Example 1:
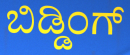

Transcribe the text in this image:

ಬಿಡ್ಡಿಂಗ್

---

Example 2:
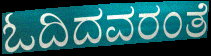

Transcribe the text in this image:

ಓದಿದವರಂತೆ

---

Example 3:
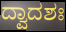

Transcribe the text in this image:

ದ್ವಾದಶಃ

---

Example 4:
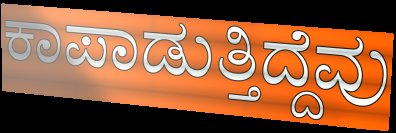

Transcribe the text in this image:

ಕಾಪಾಡುತ್ತಿದ್ದೆವು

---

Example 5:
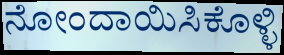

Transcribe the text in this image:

ನೋಂದಾಯಿಸಿಕೊಳ್ಳಿ